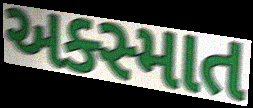
અક્સ્માત